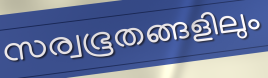
സര്വഭൂതങ്ങളിലും